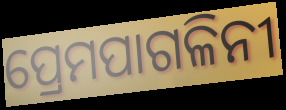
ପ୍ରେମପାଗଳିନୀ